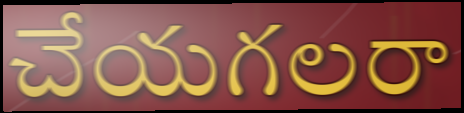
చేయగలరా